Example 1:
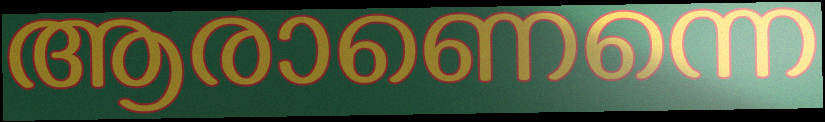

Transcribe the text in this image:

ആരാണെന്നെ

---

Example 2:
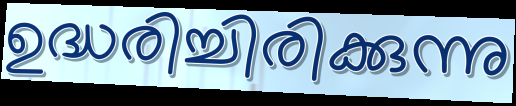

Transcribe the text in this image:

ഉദ്ധരിച്ചിരിക്കുന്നു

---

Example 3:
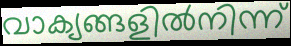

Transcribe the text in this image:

വാക്യങ്ങളിൽനിന്ന്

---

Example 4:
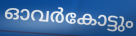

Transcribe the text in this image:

ഓവർകോട്ടും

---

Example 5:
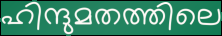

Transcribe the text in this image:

ഹിന്ദുമതത്തിലെ